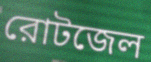
রোটজেল